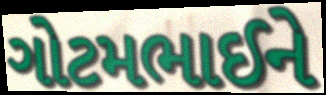
ગોટમભાઈને